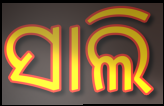
ସାଲି